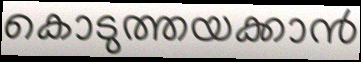
കൊടുത്തയക്കാൻ